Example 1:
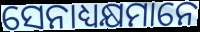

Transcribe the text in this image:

ସେନାଧ୍ୟକ୍ଷମାନେ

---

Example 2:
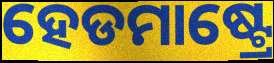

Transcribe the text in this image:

ହେଡମାଷ୍ଟ୍ରେ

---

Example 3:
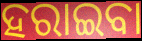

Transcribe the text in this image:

ହରାଇବା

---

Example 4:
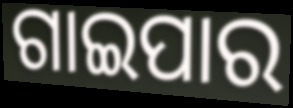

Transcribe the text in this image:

ଗାଇପାର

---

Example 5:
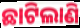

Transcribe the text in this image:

ଛାଟିଲାଣି